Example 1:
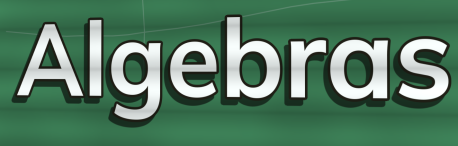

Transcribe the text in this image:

Algebras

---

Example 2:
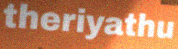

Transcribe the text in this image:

theriyathu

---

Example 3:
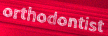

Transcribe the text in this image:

orthodontist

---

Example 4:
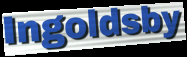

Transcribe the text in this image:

Ingoldsby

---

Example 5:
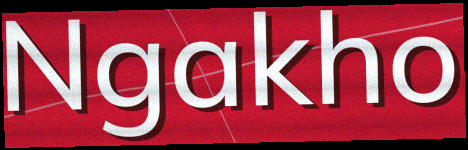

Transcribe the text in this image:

Ngakho